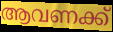
ആവണക്ക്